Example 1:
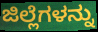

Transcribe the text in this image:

ಜಿಲ್ಲೆಗಳನ್ನು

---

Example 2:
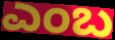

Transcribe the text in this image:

ಎಂಬ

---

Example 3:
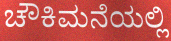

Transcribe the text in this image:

ಚೌಕಿಮನೆಯಲ್ಲಿ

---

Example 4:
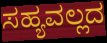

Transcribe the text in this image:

ಸಹ್ಯವಲ್ಲದ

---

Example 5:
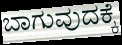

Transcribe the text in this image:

ಬಾಗುವುದಕ್ಕೆ